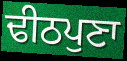
ਢੀਠਪੁਣਾ